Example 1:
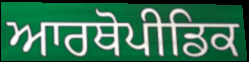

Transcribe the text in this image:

ਆਰਥੋਪੀਡਿਕ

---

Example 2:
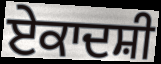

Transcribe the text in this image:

ਏਕਾਦਸ਼ੀ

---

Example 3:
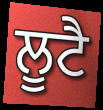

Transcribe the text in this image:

ਲੂਟੈ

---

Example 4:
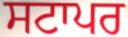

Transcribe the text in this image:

ਸਟਾਪਰ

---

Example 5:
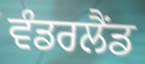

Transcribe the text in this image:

ਵੰਡਰਲੈਂਡ